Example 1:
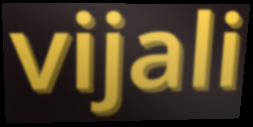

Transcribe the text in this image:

vijali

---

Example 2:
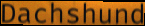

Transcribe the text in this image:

Dachshund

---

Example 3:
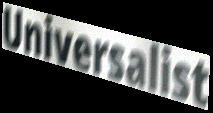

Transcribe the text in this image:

Universalist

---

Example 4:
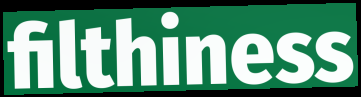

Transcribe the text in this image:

filthiness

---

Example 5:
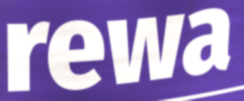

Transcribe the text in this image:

rewa